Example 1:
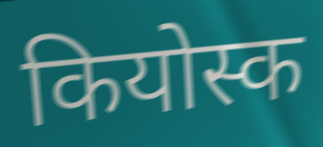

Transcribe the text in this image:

कियोस्क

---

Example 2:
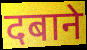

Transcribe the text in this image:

दबाने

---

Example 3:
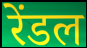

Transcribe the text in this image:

रेंडल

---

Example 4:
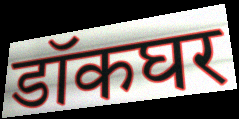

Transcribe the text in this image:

डॉकघर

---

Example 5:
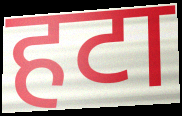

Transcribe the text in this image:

हटा